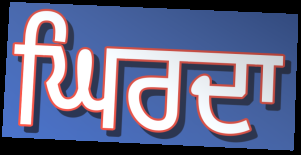
ਘਿਰਦਾ